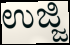
ಉಜ್ಜಿ